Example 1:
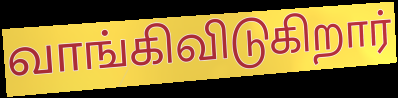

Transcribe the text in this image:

வாங்கிவிடுகிறார்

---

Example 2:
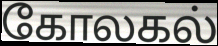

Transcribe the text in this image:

கோலகல்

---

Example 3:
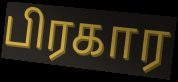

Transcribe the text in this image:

பிரகார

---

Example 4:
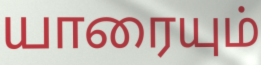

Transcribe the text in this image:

யாரையும்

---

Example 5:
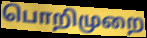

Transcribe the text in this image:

பொறிமுறை